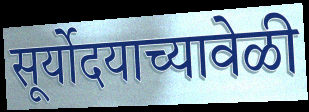
सूर्योदयाच्यावेळी